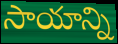
సాయాన్ని